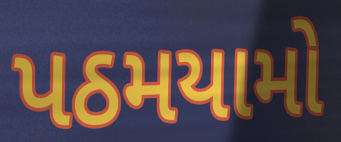
પઠમયામો